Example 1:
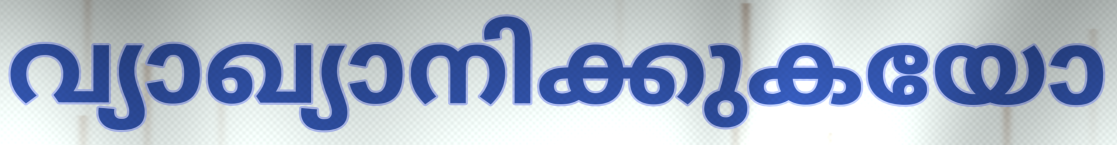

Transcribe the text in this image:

വ്യാഖ്യാനിക്കുകയോ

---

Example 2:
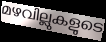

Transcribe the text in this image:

മഴവില്ലുകളുടെ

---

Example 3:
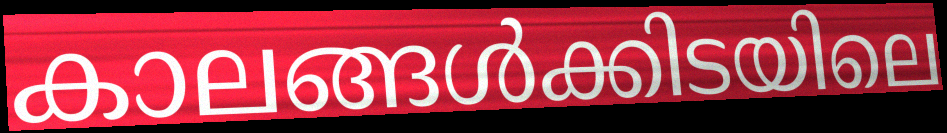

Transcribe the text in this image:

കാലങ്ങൾക്കിടയിലെ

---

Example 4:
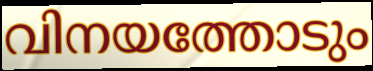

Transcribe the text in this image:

വിനയത്തോടും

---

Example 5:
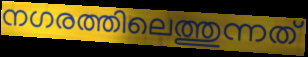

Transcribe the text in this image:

നഗരത്തിലെത്തുന്നത്